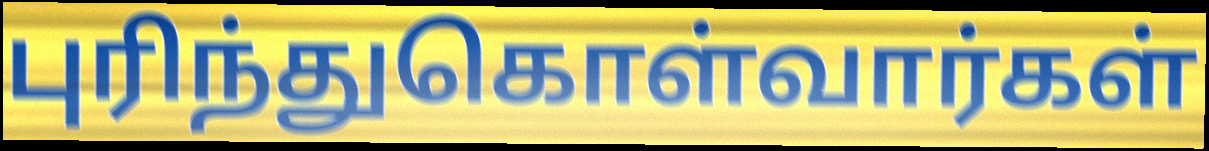
புரிந்துகொள்வார்கள்